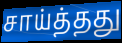
சாய்த்தது